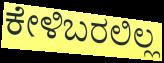
ಕೇಳಿಬರಲಿಲ್ಲ